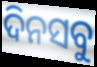
ଦିନସବୁ